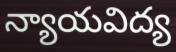
న్యాయవిద్య